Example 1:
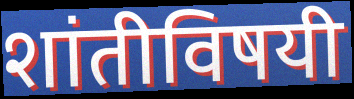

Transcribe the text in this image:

शांतीविषयी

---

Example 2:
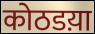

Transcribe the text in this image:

कोठडय़ा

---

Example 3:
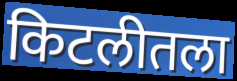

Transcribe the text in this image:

किटलीतला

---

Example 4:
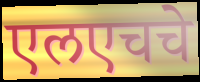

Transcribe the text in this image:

एलएचचे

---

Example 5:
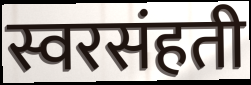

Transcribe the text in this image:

स्वरसंहती